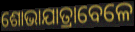
ଶୋଭାଯାତ୍ରାବେଳେ